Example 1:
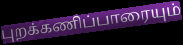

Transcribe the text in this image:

புறக்கணிப்பாரையும்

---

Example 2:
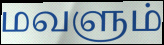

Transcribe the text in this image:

மவளும்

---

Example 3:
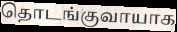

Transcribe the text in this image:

தொடங்குவாயாக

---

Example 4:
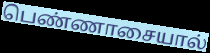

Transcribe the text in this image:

பெண்ணாசையால்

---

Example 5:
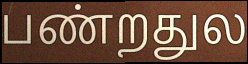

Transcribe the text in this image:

பண்றதுல